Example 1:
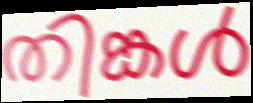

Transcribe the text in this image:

തിങ്കൾ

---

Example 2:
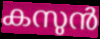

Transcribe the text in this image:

കസുൻ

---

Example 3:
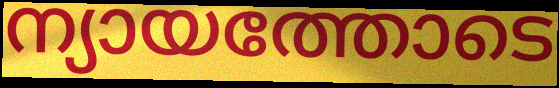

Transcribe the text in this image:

ന്യായത്തോടെ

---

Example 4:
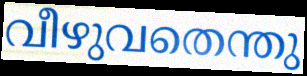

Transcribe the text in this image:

വീഴുവതെന്തു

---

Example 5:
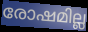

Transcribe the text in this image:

രോഷമില്ല